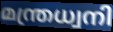
മന്ത്രധ്വനി